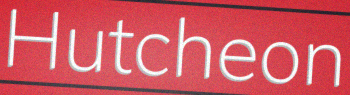
Hutcheon